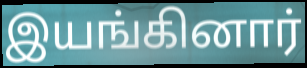
இயங்கினார்